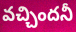
వచ్చిందనీ